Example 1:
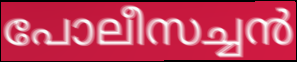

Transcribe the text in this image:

പോലീസച്ചൻ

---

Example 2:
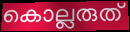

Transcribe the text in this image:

കൊല്ലരുത്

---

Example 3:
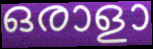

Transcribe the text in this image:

ഒരാളാ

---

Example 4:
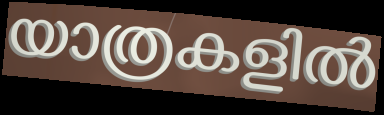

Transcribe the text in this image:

യാത്രകളിൽ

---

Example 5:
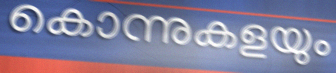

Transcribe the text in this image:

കൊന്നുകളയും